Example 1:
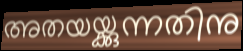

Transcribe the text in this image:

അതയയ്ക്കുന്നതിനു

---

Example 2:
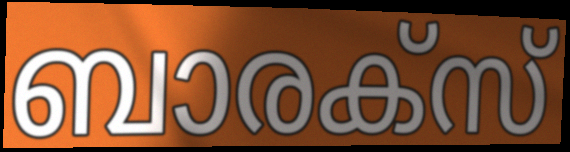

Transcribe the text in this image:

ബാരക്സ്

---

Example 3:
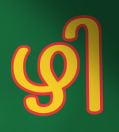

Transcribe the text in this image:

ഴി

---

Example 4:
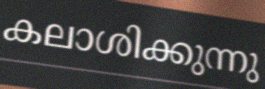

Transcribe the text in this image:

കലാശിക്കുന്നു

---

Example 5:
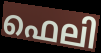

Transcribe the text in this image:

ഫെലി